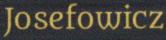
Josefowicz